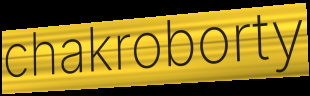
chakroborty